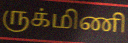
ருக்மிணி